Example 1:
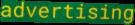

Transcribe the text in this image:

advertising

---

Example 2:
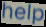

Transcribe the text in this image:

help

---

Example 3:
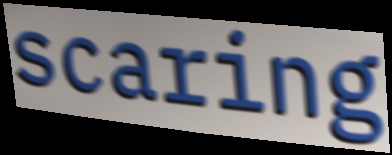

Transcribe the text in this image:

scaring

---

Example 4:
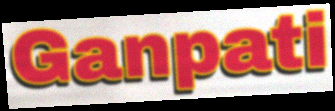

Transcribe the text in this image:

Ganpati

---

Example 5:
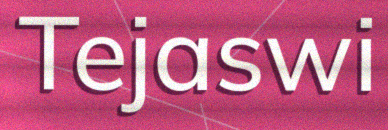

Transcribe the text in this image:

Tejaswi